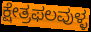
ಕ್ಷೇತ್ರಫಲವುಳ್ಳ